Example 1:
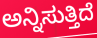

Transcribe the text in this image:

ಅನ್ನಿಸುತ್ತಿದೆ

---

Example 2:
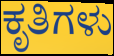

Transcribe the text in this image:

ಕೃತಿಗಳು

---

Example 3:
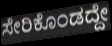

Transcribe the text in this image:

ಸೇರಿಕೊಂಡದ್ದೇ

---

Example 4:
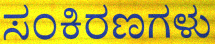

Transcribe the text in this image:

ಸಂಕಿರಣಗಳು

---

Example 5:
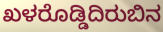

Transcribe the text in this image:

ಖಳರೊಡ್ಡಿದಿರುಬಿನ